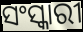
ସଂସ୍କାରୀ